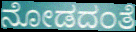
ನೋಡದಂತೆ